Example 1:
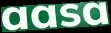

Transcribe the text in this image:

aasa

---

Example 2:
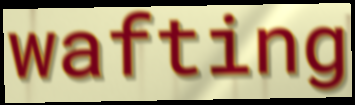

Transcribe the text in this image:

wafting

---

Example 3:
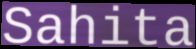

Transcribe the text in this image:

Sahita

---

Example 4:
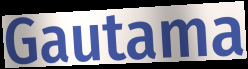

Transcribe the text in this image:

Gautama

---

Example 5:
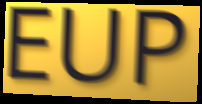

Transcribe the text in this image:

EUP